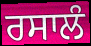
ਰਸਾਲੰ